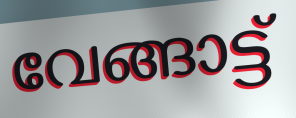
വേങ്ങാട്ട്